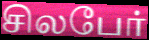
சிலபேர்